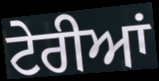
ਟੇਰੀਆਂ